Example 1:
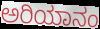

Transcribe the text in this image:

ಅರಿಯಾನಂ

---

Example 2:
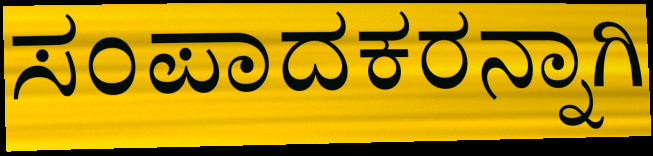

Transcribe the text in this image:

ಸಂಪಾದಕರನ್ನಾಗಿ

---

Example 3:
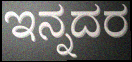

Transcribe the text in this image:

ಇನ್ನದರ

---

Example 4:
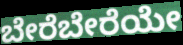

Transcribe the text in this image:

ಬೇರೆಬೇರೆಯೇ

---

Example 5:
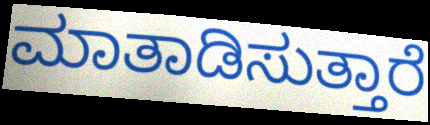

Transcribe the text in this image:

ಮಾತಾಡಿಸುತ್ತಾರೆ